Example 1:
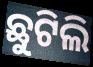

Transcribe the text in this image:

ଛୁଟିଲି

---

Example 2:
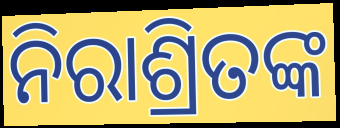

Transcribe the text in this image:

ନିରାଶ୍ରିତଙ୍କ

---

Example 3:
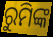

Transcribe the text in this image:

ରୁମିଙ୍କ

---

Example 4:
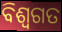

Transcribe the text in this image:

ବିଶ୍ଵଗତ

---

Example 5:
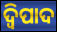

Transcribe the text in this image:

ଦ୍ୱିପାଦ